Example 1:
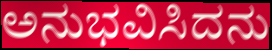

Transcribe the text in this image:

ಅನುಭವಿಸಿದನು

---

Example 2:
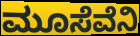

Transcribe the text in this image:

ಮೂಸೆವೆನಿ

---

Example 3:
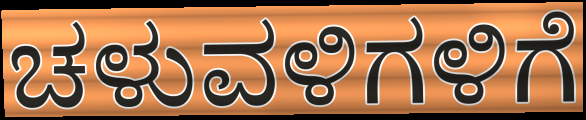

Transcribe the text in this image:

ಚಳುವಳಿಗಳಿಗೆ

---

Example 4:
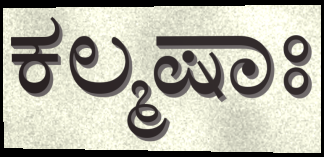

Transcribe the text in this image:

ಕಲ್ಮಷಾಃ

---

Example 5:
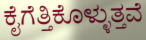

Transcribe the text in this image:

ಕೈಗೆತ್ತಿಕೊಳ್ಳುತ್ತವೆ